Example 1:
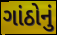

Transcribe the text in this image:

ગાંઠોનું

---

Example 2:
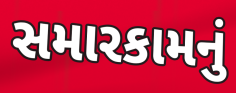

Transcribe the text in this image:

સમારકામનું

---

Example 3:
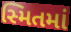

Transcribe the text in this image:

સ્મિતમાં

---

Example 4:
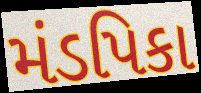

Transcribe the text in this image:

મંડપિકા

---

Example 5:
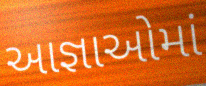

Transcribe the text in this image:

આજ્ઞાઓમાં